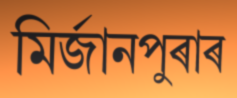
মিৰ্জানপুৰাৰ